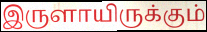
இருளாயிருக்கும்